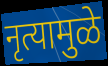
नृत्यामुळे